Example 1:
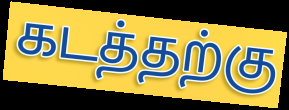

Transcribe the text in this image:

கடத்தற்கு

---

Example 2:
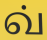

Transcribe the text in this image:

வ்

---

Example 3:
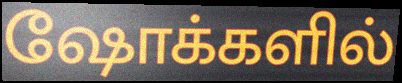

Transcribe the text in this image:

ஷோக்களில்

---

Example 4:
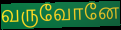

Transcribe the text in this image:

வருவோனே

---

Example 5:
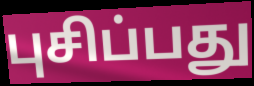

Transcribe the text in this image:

புசிப்பது